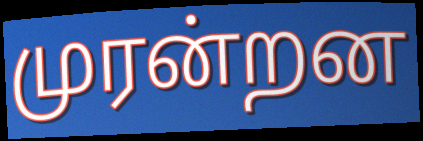
முரன்றன